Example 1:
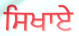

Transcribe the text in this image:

ਸਿਖਾਏੇ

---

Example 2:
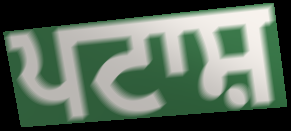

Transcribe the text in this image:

ਪਟਾਸ਼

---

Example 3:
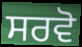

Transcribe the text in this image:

ਸਰਵੋ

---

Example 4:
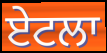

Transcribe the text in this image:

ਏਟਲਾ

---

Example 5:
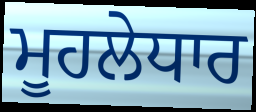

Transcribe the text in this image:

ਮੂਹਲੇਧਾਰ